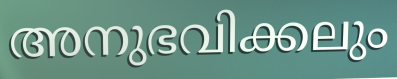
അനുഭവിക്കലും